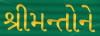
શ્રીમન્તોને